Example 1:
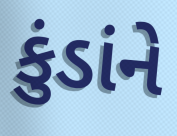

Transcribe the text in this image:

કુંડાંને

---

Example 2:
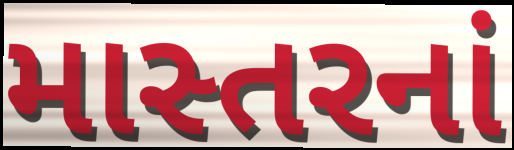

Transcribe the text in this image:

માસ્તરનાં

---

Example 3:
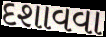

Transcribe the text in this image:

દશાવવા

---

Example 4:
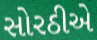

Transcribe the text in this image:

સોરઠીએ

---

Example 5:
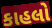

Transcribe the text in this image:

કાહલો